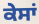
ਕੇਸਾਂ